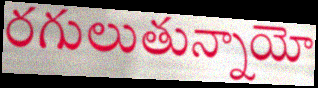
రగులుతున్నాయో